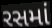
રસમાં